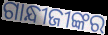
ଗାନ୍ଧୀଜୀଙ୍କର